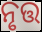
ନୃତ୍ତ